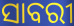
ସାବରୀ